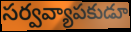
సర్వవ్యాపకుడూ